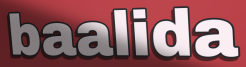
baalida